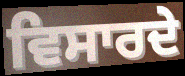
ਵਿਸਾਰਦੇ